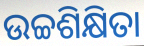
ଉଚ୍ଚଶିକ୍ଷିତା